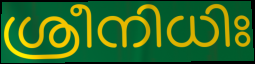
ശ്രീനിധിഃ